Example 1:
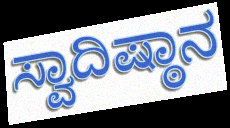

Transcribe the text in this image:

ಸ್ವಾದಿಷ್ಠಾನ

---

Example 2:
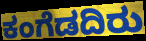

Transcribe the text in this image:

ಕಂಗೆಡದಿರು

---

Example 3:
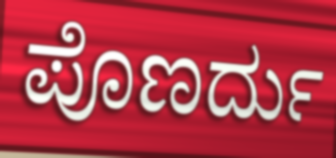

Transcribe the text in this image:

ಪೊಣರ್ದು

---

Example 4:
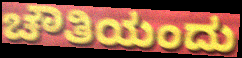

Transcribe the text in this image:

ಚೌತಿಯಂದು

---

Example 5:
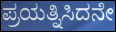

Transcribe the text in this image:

ಪ್ರಯತ್ನಿಸಿದನೇ